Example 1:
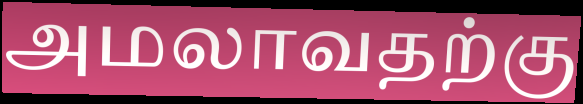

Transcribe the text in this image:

அமலாவதற்கு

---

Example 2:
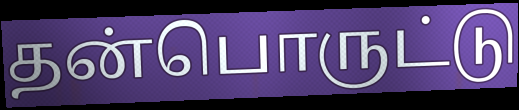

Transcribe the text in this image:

தன்பொருட்டு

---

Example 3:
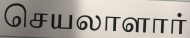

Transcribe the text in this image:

செயலாளார்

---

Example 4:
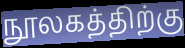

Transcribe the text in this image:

நூலகத்திற்கு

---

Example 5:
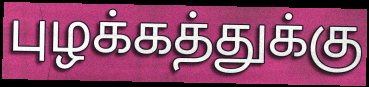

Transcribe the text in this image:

புழக்கத்துக்கு